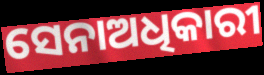
ସେନାଅଧିକାରୀ